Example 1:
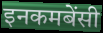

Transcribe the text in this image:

इनकमबेंसी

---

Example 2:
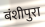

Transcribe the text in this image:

बंशीपुरा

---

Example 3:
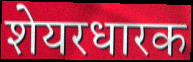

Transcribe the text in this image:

शेयरधारक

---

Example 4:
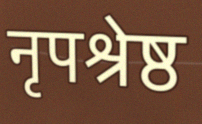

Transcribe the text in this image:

नृपश्रेष्ठ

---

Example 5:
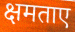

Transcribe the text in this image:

क्षमताए